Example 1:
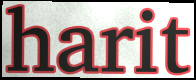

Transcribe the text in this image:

harit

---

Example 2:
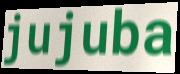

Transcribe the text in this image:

jujuba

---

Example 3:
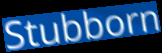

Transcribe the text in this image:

Stubborn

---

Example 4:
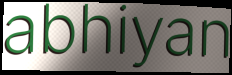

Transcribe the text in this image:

abhiyan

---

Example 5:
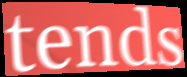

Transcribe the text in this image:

tends